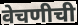
वेचणीची